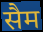
सैम